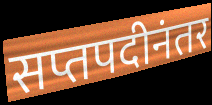
सप्तपदीनंतर